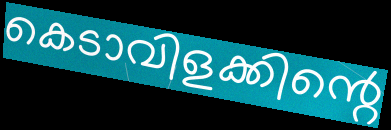
കെടാവിളക്കിന്റെ